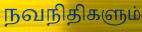
நவநிதிகளும்